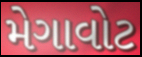
મેગાવોટ